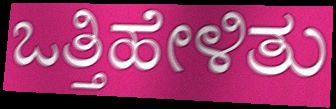
ಒತ್ತಿಹೇಳಿತು